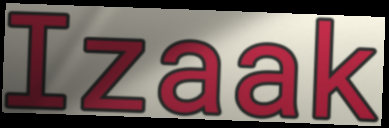
Izaak